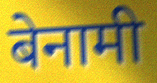
बेनामी